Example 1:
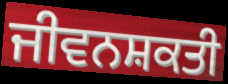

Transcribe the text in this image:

ਜੀਵਨਸ਼ਕਤੀ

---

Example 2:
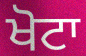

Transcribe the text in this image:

ਖੋਟਾ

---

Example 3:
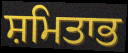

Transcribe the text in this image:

ਸ਼ਮਿਤਾਭ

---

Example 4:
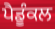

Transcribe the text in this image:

ਪੈਡੂੰਕਲ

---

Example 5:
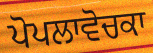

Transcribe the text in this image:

ਪੋਪਲਾਵੋਚਕਾ